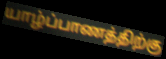
யாழ்ப்பாணத்திற்கு